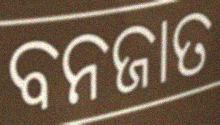
ବନଜାତ